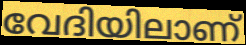
വേദിയിലാണ്